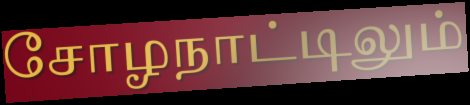
சோழநாட்டிலும்